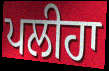
ਪਲੀਹਾ